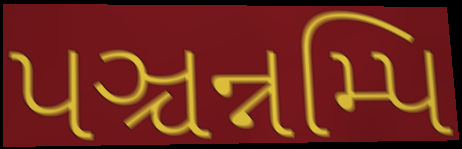
પઞ્ચન્નમ્પિ